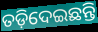
ତଡ଼ିଦେଇଛନ୍ତି